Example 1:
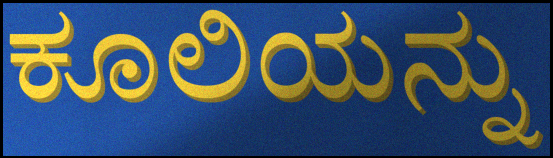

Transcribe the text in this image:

ಕೂಲಿಯನ್ನು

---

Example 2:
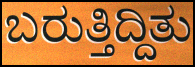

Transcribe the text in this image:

ಬರುತ್ತಿದ್ದಿತು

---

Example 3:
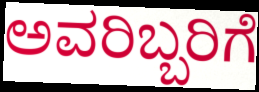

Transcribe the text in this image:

ಅವರಿಬ್ಬರಿಗೆ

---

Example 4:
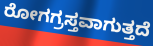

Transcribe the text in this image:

ರೋಗಗ್ರಸ್ತವಾಗುತ್ತದೆ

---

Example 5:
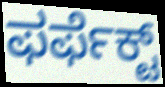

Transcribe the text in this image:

ಫರ್ಫೆಕ್ಟ್